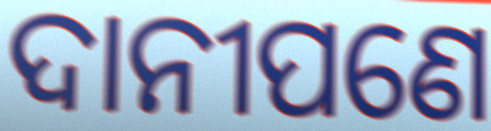
ଦାନୀପଣେ